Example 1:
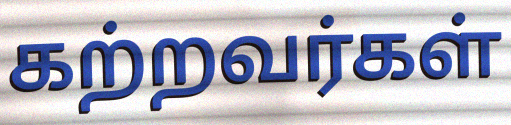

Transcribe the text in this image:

கற்றவர்கள்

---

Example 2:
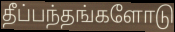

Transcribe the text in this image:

தீப்பந்தங்களோடு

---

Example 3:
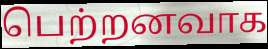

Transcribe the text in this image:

பெற்றனவாக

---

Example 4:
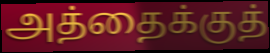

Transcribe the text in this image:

அத்தைக்குத்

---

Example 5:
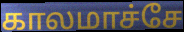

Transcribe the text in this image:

காலமாச்சே